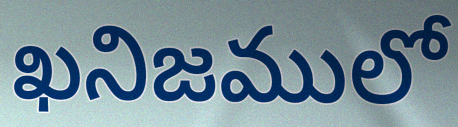
ఖనిజములో